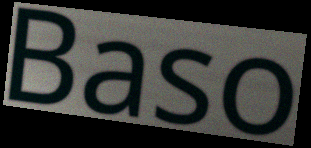
Baso